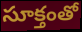
సూక్తంతో